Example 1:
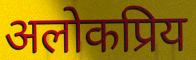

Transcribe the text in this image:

अलोकप्रिय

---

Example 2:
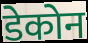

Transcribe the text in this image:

डेकोन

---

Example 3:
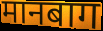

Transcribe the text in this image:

मानबाग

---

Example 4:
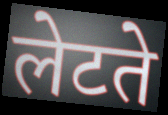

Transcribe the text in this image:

लेटते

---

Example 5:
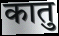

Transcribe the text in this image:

कातु